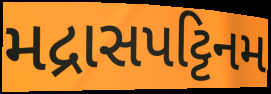
મદ્રાસપટ્ટિનમ